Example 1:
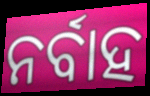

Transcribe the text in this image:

ନର୍ବାହ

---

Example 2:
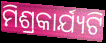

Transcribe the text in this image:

ମିଶ୍ରକାର୍ଯ୍ୟଟି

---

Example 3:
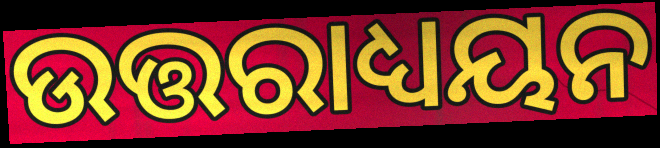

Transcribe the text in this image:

ଉତ୍ତରାଧ୍ୟୟନ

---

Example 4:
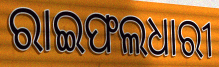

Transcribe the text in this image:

ରାଇଫଲଧାରୀ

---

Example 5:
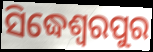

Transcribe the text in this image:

ସିଦ୍ଧେଶ୍ଵରପୁର